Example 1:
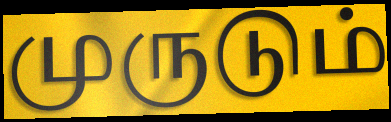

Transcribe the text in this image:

முருடும்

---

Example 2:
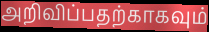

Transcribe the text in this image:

அறிவிப்பதற்காகவும்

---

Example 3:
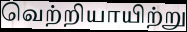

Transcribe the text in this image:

வெற்றியாயிற்று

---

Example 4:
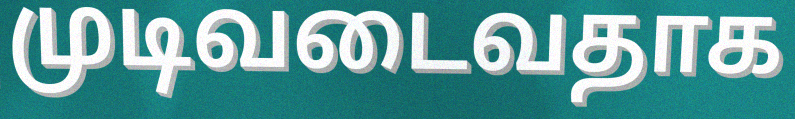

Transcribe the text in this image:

முடிவடைவதாக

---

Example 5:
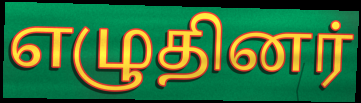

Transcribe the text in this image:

எழுதினர்